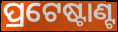
ପ୍ରଟେଷ୍ଟାଣ୍ଟ